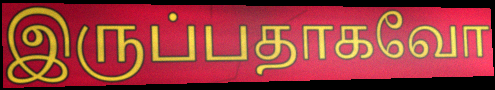
இருப்பதாகவோ